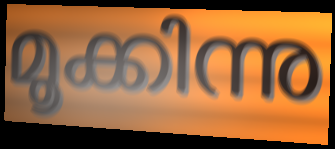
മൂക്കിന്നു